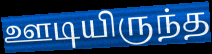
ஊடியிருந்த